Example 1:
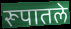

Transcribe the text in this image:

रूपातले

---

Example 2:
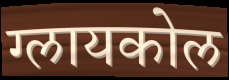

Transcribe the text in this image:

ग्लायकोल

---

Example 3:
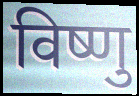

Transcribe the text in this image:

विष्णु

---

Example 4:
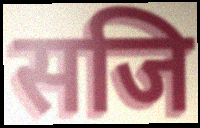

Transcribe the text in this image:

सजि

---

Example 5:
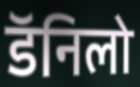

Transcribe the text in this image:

डॅनिलो